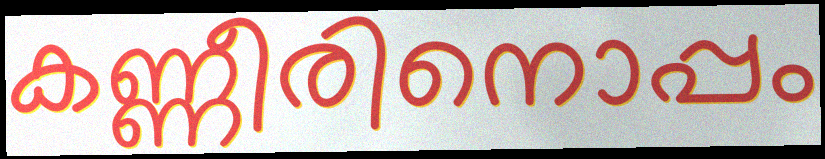
കണ്ണീരിനൊപ്പം